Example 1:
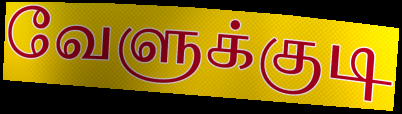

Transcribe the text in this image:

வேளுக்குடி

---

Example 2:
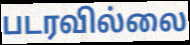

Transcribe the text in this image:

படரவில்லை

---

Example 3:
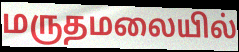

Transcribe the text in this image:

மருதமலையில்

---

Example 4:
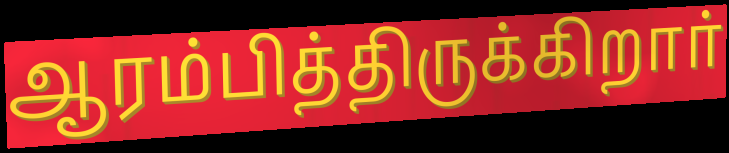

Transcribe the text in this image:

ஆரம்பித்திருக்கிறார்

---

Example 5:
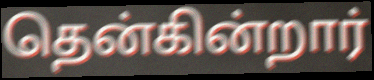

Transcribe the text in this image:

தென்கின்றார்